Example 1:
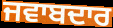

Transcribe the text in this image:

ਜਵਾਬਦਾਰ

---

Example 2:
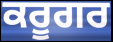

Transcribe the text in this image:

ਕਰੂਗਰ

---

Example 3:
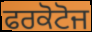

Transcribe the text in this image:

ਫਰਕੋਟੋਜ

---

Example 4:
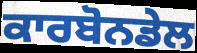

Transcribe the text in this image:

ਕਾਰਬੋਨਡੇਲ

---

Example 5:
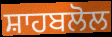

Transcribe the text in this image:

ਸ਼ਾਹਬਲੋਲ